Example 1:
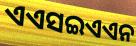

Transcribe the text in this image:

ଏଏସଇଏଏନ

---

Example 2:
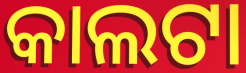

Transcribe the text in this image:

କାଲଟା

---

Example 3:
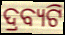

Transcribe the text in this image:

ଦ୍ରବ୍ୟଟି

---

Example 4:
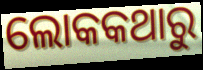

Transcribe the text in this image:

ଲୋକକଥାରୁ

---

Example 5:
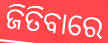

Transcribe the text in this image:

ଜିତିବାରେ